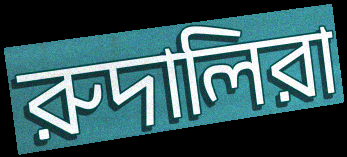
রুদালিরা